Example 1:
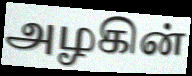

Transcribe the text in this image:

அழகின்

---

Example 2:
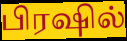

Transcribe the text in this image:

பிரஷில்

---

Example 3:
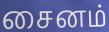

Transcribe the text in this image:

சைனம்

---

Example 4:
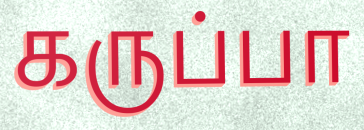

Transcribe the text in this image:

கருப்பா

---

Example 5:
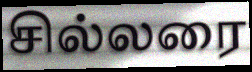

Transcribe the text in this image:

சில்லரை